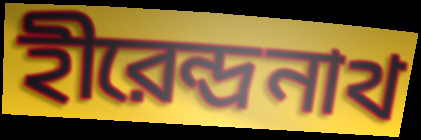
হীরেন্দ্রনাথ